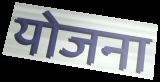
योजना